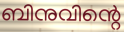
ബിനുവിന്റെ